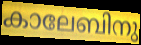
കാലേബിനു